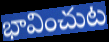
భావించుట